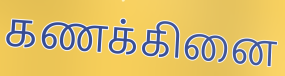
கணக்கினை